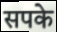
सपके